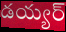
డయ్యర్